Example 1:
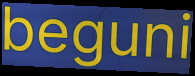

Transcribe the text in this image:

beguni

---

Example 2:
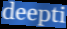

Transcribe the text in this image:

deepti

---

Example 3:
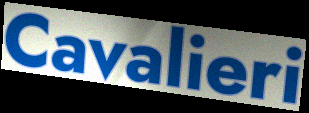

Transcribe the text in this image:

Cavalieri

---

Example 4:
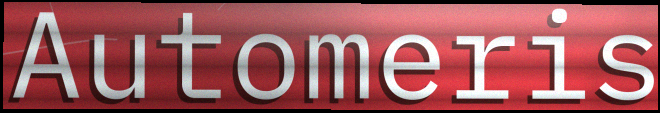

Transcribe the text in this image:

Automeris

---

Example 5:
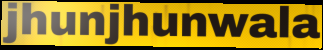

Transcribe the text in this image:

jhunjhunwala